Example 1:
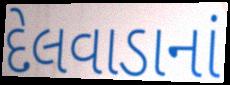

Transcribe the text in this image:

દેલવાડાનાં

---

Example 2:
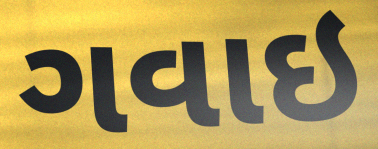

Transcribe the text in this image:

ગવાઇ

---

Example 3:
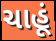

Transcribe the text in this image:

ચાહૂં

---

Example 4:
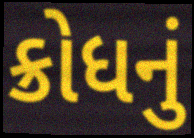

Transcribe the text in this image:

ક્રોધનું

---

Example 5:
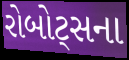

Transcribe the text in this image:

રોબોટ્સના